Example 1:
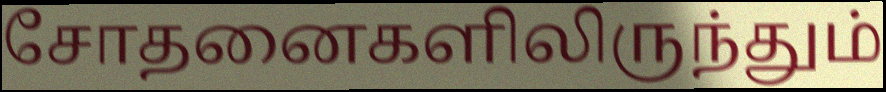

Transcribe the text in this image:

சோதனைகளிலிருந்தும்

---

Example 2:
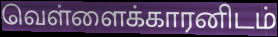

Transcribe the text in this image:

வெள்ளைக்காரனிடம்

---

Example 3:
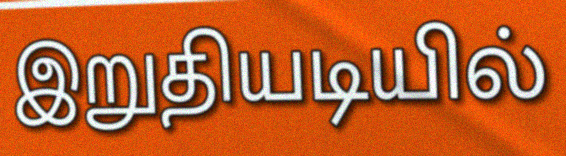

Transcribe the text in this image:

இறுதியடியில்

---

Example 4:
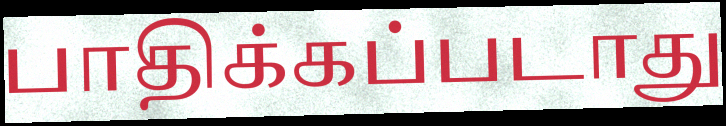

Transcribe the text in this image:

பாதிக்கப்படாது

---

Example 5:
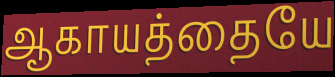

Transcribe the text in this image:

ஆகாயத்தையே